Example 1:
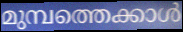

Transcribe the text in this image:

മുമ്പത്തെക്കാൾ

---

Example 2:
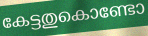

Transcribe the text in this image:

കേട്ടതുകൊണ്ടോ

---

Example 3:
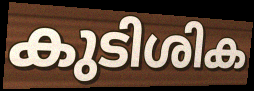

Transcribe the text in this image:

കുടിശിക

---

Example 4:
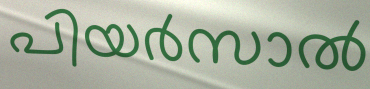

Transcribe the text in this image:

പിയർസാൽ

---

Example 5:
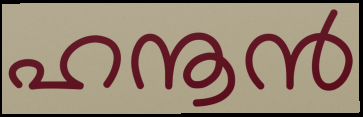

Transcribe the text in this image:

ഹനൂൻ